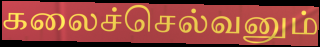
கலைச்செல்வனும்